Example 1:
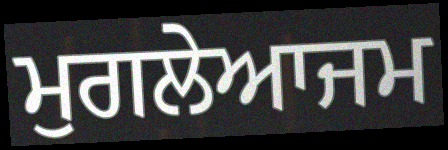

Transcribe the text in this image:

ਮੁਗਲੇਆਜਮ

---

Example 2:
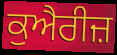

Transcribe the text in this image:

ਕੁਐਰੀਜ਼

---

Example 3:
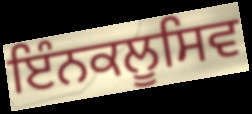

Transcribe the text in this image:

ਇੰਨਕਲੂਸਿਵ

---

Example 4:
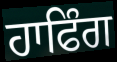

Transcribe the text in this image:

ਹਾਫਿੰਗ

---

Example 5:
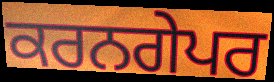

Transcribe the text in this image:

ਕਰਨਗੇਪਰ